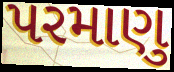
પરમાણુ